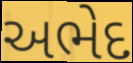
અભેદ